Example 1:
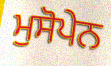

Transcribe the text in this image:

ਮੁਸੋਪੇਨ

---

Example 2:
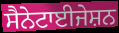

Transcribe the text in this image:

ਸੈਨੇਟਾਈਜੇਸ਼ਨ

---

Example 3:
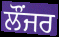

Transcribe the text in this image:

ਲੌਂਜਰ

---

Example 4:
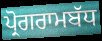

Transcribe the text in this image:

ਪ੍ਰੋਗਰਾਮਬੱਧ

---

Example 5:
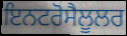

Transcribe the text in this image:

ਇਨਟਰੋਸੈਲੂਲਰ